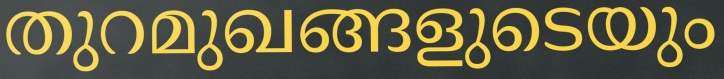
തുറമുഖങ്ങളുടെയും